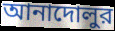
আনাদোলুর